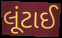
લૂંટાઈ